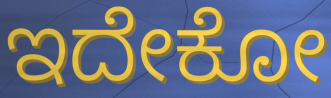
ಇದೇಕೋ